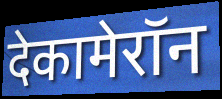
देकामेरॉन